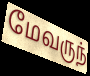
மேவருந்